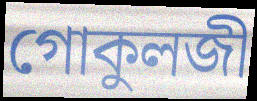
গোকুলজী